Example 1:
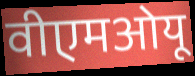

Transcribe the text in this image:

वीएमओयू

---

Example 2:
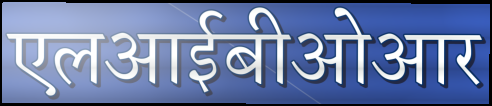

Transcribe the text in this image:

एलआईबीओआर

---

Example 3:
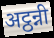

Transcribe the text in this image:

अट्ठन्नी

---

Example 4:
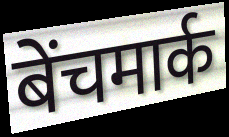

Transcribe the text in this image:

बेंचमार्क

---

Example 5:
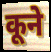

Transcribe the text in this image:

कूने